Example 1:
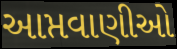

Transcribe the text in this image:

આપ્તવાણીઓ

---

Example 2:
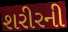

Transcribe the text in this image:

શરીરની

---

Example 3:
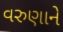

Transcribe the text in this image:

વરુણાને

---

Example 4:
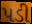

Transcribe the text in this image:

પડી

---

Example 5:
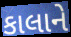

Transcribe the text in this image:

કાલાને